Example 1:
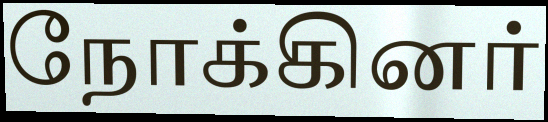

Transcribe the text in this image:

நோக்கினர்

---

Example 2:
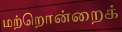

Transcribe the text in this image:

மற்றொன்றைக்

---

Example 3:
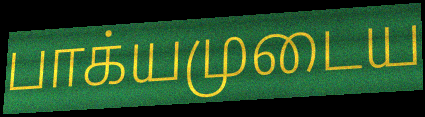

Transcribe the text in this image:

பாக்யமுடைய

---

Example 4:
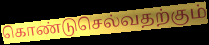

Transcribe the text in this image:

கொண்டுசெல்வதற்கும்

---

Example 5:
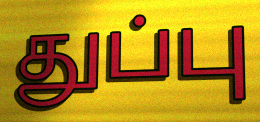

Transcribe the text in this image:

துப்பு